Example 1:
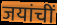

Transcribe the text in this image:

जयांचीं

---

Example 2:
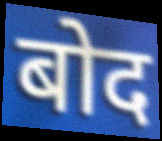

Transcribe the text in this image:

बोद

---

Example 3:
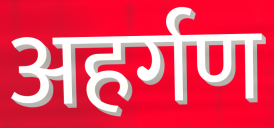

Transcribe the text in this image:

अहर्गण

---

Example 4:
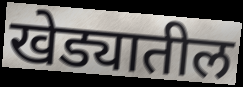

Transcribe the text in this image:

खेड्यातील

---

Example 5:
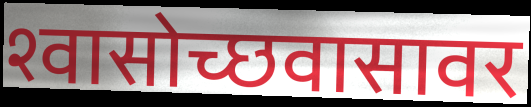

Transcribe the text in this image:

श्वासोच्छवासावर